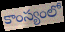
కాంస్యంలో